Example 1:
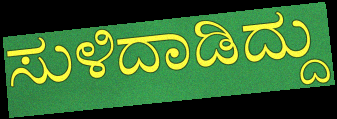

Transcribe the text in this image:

ಸುಳಿದಾಡಿದ್ದು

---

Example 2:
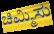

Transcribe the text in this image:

ಚಿಮ್ಮಿಸು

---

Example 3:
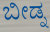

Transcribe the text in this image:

ಬೀಡ್ನ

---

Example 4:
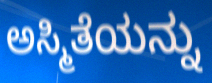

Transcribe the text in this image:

ಅಸ್ಮಿತೆಯನ್ನು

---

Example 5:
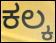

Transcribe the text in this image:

ಕಲ್ಕ